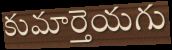
కుమార్తెయగు